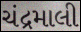
ચંદ્રમાલી